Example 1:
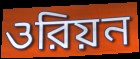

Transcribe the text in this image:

ওরিয়ন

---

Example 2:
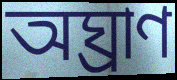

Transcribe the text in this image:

অঘ্রাণ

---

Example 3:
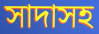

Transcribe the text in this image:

সাদাসহ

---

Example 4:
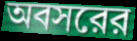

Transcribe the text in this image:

অবসরের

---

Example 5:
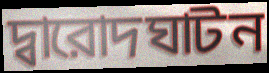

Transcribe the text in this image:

দ্বারোদঘাটন